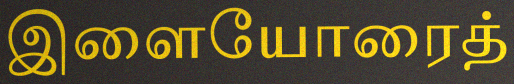
இளையோரைத்